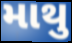
માથુ